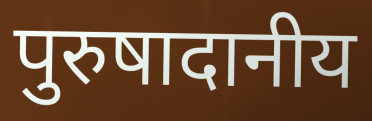
पुरुषादानीय